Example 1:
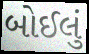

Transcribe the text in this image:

બોઈલું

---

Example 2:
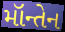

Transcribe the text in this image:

મૉન્તેન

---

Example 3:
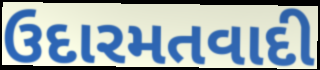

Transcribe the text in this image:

ઉદારમતવાદી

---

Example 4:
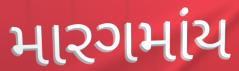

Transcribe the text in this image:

મારગમાંય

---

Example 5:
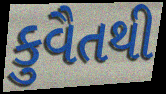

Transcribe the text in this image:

કુવૈતથી